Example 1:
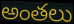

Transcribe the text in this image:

అంతలు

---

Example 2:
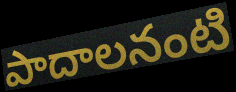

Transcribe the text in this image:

పాదాలనంటి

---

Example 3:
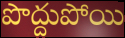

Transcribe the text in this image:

పొద్దుపోయి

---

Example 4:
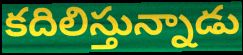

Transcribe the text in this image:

కదిలిస్తున్నాడు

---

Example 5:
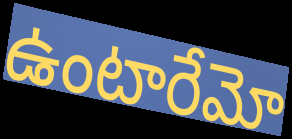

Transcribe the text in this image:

ఉంటారేమో